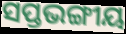
ସପ୍ତଭଙ୍ଗୀୟ